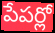
పేపర్లో